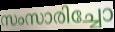
സംസാരിച്ചോ